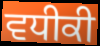
ਵਧੀਕੀ